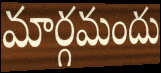
మార్గమందు